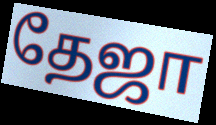
தேஜா